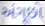
અંગૂછો